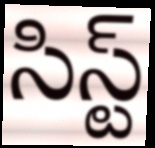
సిస్ట్